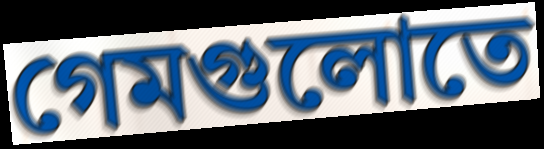
গেমগুলোতে